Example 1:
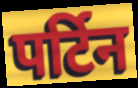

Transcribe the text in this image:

पर्टिन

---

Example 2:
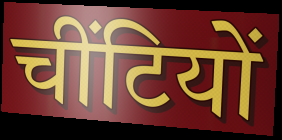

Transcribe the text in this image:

चींटियों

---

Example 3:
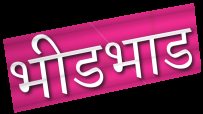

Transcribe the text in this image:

भीडभाड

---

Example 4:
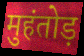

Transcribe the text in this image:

मुहंतोड़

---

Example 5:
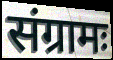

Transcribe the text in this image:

संग्रामः